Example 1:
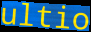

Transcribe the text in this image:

ultio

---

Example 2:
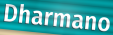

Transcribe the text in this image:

Dharmano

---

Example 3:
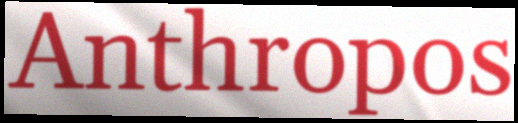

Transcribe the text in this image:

Anthropos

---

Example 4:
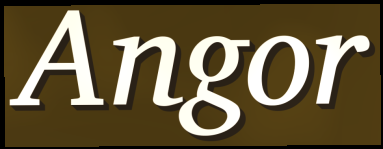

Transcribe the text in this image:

Angor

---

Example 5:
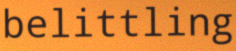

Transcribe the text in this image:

belittling